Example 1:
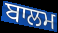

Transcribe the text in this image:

ਬਾਲਮ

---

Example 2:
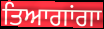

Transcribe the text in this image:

ਤਿਆਗਾਂਗਾ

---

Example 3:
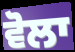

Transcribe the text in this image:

ਵੋਲਾ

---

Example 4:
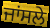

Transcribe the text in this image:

ਜਾਂਸਲੇ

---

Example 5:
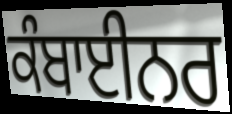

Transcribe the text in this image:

ਕੰਬਾਈਨਰ